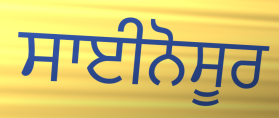
ਸਾਈਨੋਸੂਰ